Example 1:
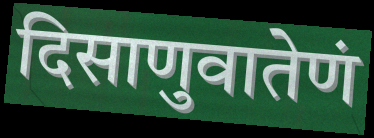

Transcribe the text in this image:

दिसाणुवातेणं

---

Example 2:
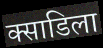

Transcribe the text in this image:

क्साडिला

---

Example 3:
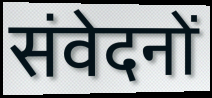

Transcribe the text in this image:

संवेदनों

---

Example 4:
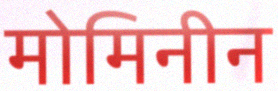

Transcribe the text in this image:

मोमिनीन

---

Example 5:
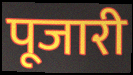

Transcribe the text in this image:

पूजारी